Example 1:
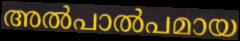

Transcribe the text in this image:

അൽപാൽപമായ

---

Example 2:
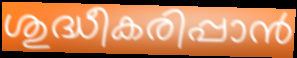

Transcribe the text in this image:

ശുദ്ധീകരിപ്പാൻ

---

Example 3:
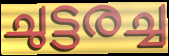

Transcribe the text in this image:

ചുട്ടരച്ച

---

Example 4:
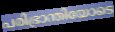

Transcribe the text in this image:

പരിഭ്രാന്തിയോടെ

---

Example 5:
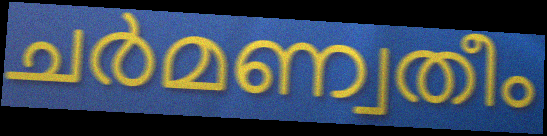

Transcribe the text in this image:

ചർമണ്വതീം